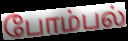
போம்பல்